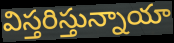
విస్తరిస్తున్నాయా